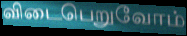
விடைபெறுவோம்